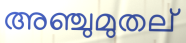
അഞ്ചുമുതല്